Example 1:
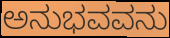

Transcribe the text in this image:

ಅನುಭವವನು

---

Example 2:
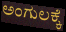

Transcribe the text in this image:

ಅಂಗುಲಕ್ಕೆ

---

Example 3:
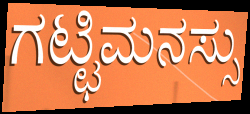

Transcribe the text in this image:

ಗಟ್ಟಿಮನಸ್ಸು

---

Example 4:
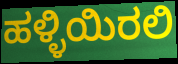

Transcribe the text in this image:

ಹಳ್ಳಿಯಿರಲಿ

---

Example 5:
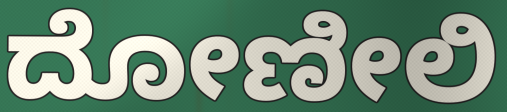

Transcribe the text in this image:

ದೋಣೀಲಿ